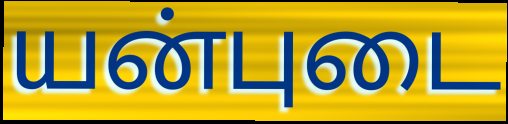
யன்புடை